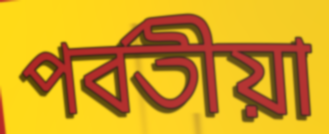
পৰ্বতীয়া